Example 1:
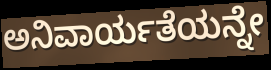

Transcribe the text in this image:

ಅನಿವಾರ್ಯತೆಯನ್ನೇ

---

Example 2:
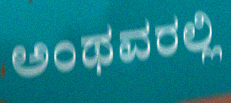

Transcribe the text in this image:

ಅಂಥವರಲ್ಲಿ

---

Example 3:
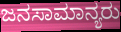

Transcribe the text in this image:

ಜನಸಾಮಾನ್ಯರು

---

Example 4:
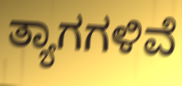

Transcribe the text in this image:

ತ್ಯಾಗಗಳಿವೆ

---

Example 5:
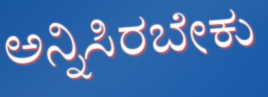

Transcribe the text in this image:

ಅನ್ನಿಸಿರಬೇಕು